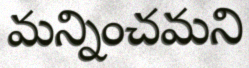
మన్నించమని